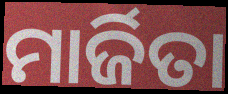
ମାର୍ଜିତା